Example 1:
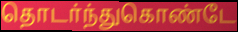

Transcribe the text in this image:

தொடர்ந்துகொண்டே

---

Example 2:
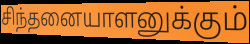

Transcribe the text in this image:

சிந்தனையாளனுக்கும்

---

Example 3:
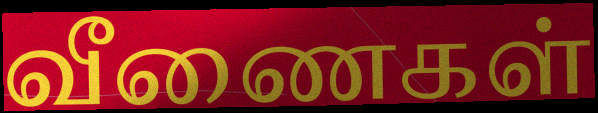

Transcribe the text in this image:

வீணைகள்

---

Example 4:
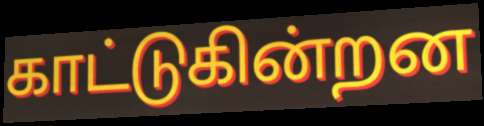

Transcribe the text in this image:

காட்டுகின்றன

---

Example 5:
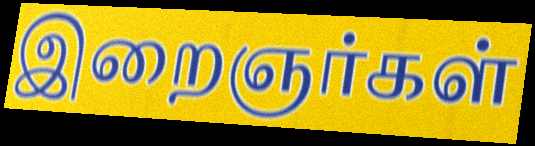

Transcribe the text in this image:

இறைஞர்கள்